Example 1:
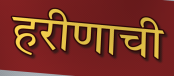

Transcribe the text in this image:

हरीणाची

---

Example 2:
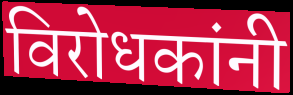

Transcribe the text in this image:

विरोधकांनी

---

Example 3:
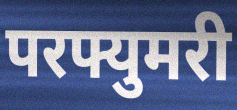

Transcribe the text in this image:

परफ्युमरी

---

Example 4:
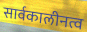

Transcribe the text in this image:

सार्वकालीनत्व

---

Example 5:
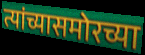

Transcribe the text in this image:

त्यांच्यासमोरच्या